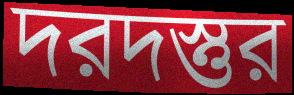
দরদস্তুর